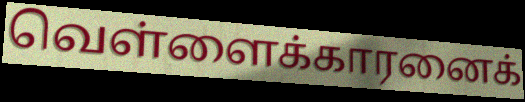
வெள்ளைக்காரனைக்